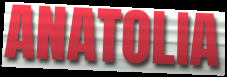
ANATOLIA